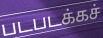
படபடக்கச்